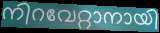
നിറവേറ്റാനായി